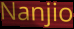
Nanjio